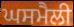
ਘਸਮੈਲੀ